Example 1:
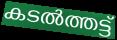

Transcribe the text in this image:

കടൽത്തട്ട്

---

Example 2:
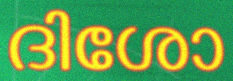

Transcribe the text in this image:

ദിശോ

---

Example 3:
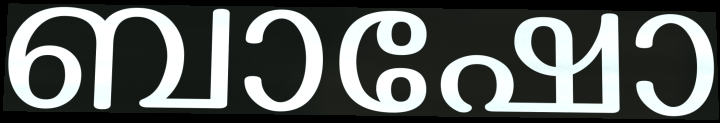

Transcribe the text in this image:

ബാഷോ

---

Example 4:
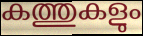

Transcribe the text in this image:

കത്തുകളും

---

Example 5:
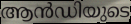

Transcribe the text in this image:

ആൻഡിയുടെ